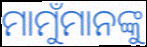
ମାମୁଁମାନଙ୍କୁ